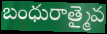
బంధురాత్మైవ